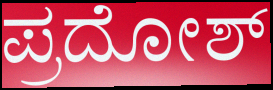
ಪ್ರದೋಶ್